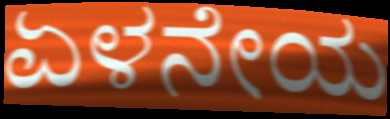
ಏಳನೇಯ